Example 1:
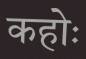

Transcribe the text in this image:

कहोः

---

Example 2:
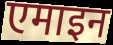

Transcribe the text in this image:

एमाइन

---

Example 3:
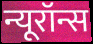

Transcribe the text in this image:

न्यूरॉन्स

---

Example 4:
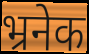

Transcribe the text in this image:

भ्रनेक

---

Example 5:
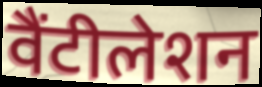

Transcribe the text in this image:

वैंटीलेशन